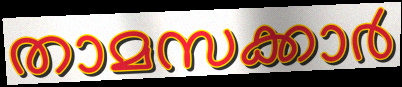
താമസക്കാർ